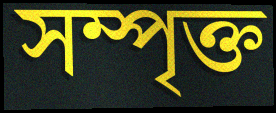
সম্পৃক্ত